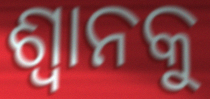
ଶ୍ଵାନକୁ